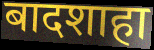
बादशाहा